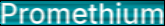
Promethium